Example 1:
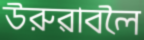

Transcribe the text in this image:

উৰুৱাবলৈ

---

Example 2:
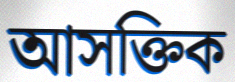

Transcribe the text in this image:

আসক্তিক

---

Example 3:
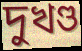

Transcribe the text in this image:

দুখণ্ড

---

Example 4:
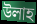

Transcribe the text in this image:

উলাহ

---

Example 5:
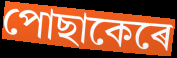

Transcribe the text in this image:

পোছাকেৰে